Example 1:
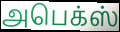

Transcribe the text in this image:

அபெக்ஸ்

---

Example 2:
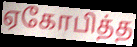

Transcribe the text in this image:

ஏகோபித்த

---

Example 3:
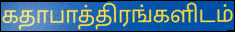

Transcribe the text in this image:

கதாபாத்திரங்களிடம்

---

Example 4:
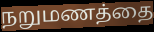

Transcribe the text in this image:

நறுமணத்தை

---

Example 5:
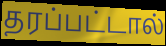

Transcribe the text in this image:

தரப்பட்டால்